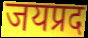
जयप्रद